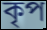
কৃপ